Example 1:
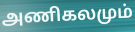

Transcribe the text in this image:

அணிகலமும்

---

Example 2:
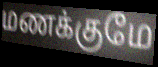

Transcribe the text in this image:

மணக்குமே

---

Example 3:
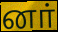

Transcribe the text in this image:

னர்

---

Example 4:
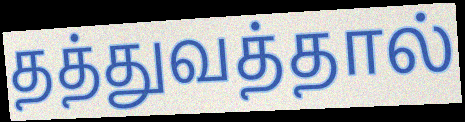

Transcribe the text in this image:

தத்துவத்தால்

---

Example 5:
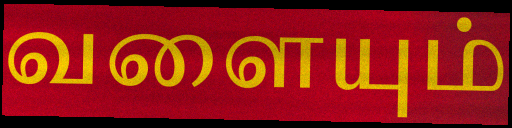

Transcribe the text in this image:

வளையும்